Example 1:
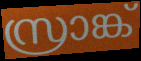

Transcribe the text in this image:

സ്രാങ്ക്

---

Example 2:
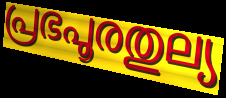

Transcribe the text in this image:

പ്രഭപൂരതുല്യ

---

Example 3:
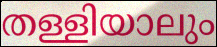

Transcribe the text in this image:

തള്ളിയാലും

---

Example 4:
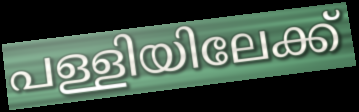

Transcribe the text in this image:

പള്ളിയിലേക്ക്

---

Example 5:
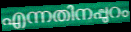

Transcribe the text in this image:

എന്നതിനപ്പുറം